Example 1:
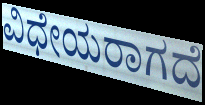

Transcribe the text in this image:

ವಿಧೇಯರಾಗದೆ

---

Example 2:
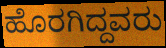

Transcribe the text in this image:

ಹೊರಗಿದ್ದವರು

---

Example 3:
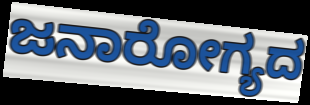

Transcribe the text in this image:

ಜನಾರೋಗ್ಯದ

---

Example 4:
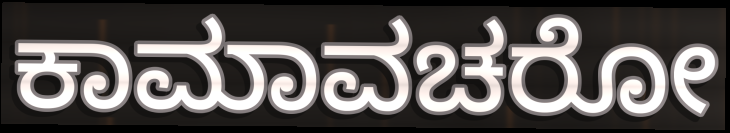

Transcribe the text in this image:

ಕಾಮಾವಚರೋ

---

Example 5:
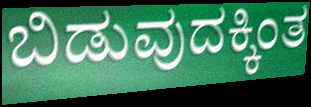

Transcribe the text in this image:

ಬಿಡುವುದಕ್ಕಿಂತ